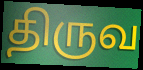
திருவ